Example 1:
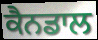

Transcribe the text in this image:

ਕੈਨਡਾਲ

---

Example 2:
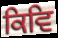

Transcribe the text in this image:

ਕਿਵਿ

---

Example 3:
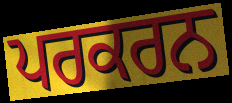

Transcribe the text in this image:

ਪਰਕਰਨ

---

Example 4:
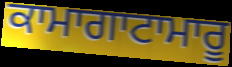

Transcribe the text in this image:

ਕਾਮਾਗਾਟਾਮਾਰੂ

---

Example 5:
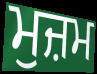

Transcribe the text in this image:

ਮੁਜ਼ਮ